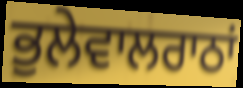
ਭੁਲੇਵਾਲਰਾਠਾਂ